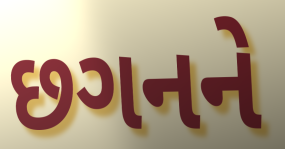
છગનને